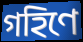
গহিণে